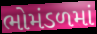
ભોમંડળમાં